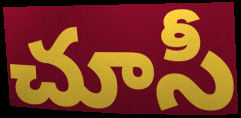
చూసీ